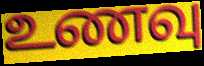
உணவு